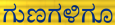
ಗುಣಗಳಿಗೂ